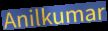
Anilkumar